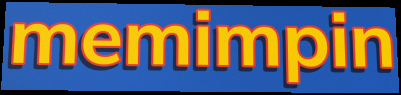
memimpin